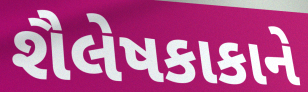
શૈલેષકાકાને